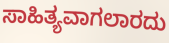
ಸಾಹಿತ್ಯವಾಗಲಾರದು